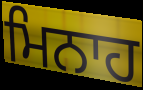
ਮਿਨਾਹ